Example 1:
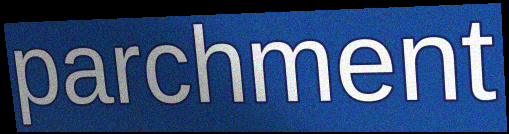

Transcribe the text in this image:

parchment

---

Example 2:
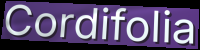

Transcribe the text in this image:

Cordifolia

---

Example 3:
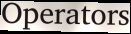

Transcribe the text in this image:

Operators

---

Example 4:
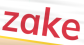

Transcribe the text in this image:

zake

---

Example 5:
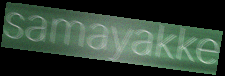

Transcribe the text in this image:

samayakke